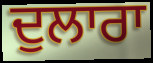
ਦੁਲਾਰਾ